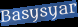
Basysyar